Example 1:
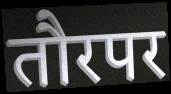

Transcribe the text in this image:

तौरपर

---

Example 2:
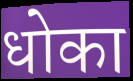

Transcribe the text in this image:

धोका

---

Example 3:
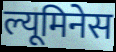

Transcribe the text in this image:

ल्यूमिनेस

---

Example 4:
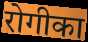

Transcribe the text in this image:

रोगीका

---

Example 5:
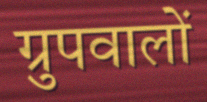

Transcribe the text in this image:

ग्रुपवालों